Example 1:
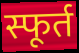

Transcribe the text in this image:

स्फूर्त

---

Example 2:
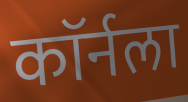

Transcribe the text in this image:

कॉर्नला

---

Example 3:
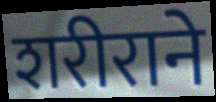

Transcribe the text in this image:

शरीराने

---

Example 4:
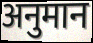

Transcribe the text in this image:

अनुमान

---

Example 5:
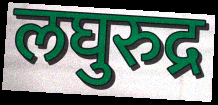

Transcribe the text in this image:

लघुरुद्र